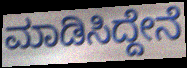
ಮಾಡಿಸಿದ್ದೇನೆ